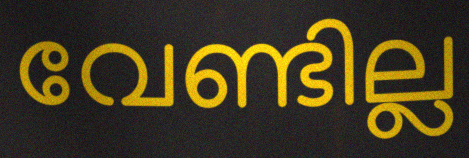
വേണ്ടില്ല